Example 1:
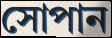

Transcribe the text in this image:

সোপান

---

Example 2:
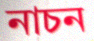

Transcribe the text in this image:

নাচন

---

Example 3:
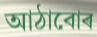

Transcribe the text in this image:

আঠাবোৰ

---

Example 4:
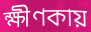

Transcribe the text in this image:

ক্ষীণকায়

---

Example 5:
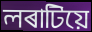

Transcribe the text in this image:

লৰাটিয়ে